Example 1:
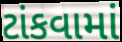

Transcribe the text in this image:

ટાંકવામાં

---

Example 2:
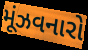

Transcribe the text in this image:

મૂંઝવનારો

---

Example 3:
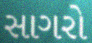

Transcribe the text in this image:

સાગરો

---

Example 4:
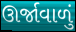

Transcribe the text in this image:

ઊર્જાવાળું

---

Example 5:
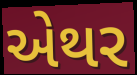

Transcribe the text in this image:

એથર